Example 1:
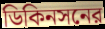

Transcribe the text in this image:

ডিকিনসনের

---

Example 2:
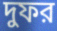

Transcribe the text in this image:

দুফর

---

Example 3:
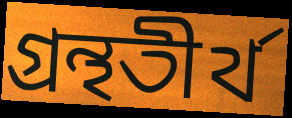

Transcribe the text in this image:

গ্রন্থতীর্থ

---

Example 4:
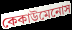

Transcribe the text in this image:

কেকাউমেনোস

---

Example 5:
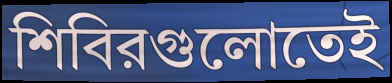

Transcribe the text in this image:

শিবিরগুলোতেই